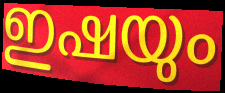
ഇഷയും